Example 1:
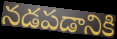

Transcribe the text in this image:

నడపడానికి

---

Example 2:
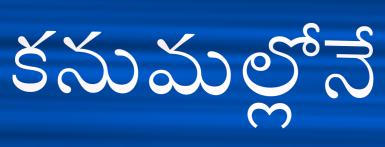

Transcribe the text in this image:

కనుమల్లోనే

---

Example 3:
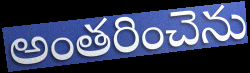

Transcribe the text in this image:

అంతరించెను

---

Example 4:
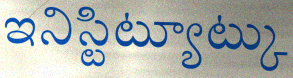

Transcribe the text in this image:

ఇనిస్టిట్యూట్కు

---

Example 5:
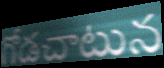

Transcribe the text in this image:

గోడచాటున